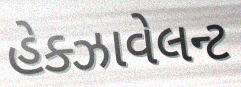
હેક્ઝાવેલન્ટ